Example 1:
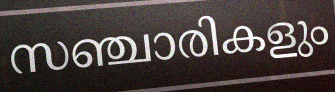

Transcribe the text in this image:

സഞ്ചാരികളും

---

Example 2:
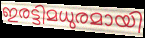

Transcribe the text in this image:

ഇരട്ടിമധുരമായി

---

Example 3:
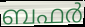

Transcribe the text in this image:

ബഫർ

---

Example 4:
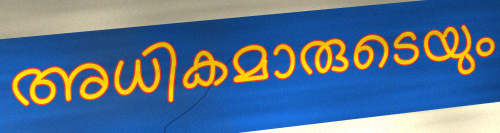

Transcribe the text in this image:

അധികമാരുടെയും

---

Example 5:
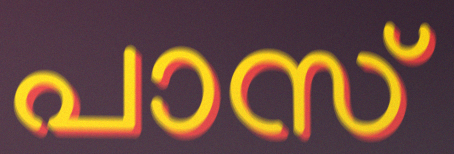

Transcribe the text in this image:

പാസ്